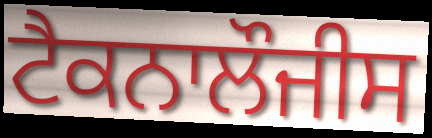
ਟੈਕਨਾਲੌਜੀਸ